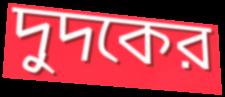
দুদকের